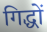
गिद्धों